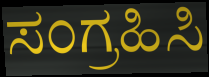
ಸಂಗ್ರಹಿಸಿ